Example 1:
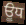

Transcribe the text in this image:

ਊਧ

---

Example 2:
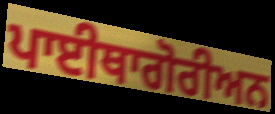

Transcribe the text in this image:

ਪਾਈਥਾਗੋਰੀਅਨ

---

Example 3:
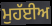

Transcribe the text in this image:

ਮੁਹੱਈਅ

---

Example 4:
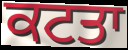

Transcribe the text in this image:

ਕਟਤਾ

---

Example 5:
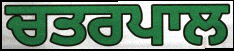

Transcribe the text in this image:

ਚਤਰਪਾਲ